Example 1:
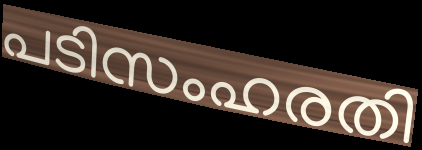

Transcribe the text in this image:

പടിസംഹരതി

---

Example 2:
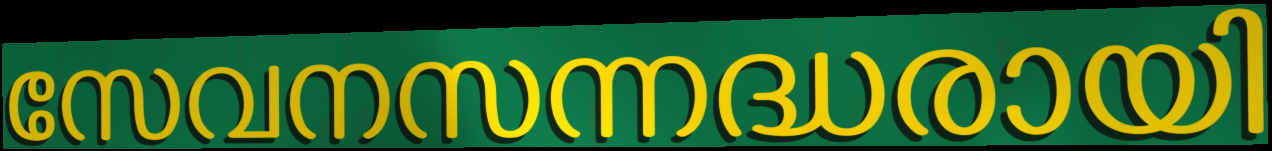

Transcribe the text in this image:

സേവനസന്നദ്ധരായി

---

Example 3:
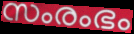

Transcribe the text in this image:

സംരംഭം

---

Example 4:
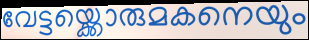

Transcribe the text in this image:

വേട്ടയ്ക്കൊരുമകനെയും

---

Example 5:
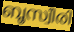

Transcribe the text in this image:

ബൂസ്വീരി